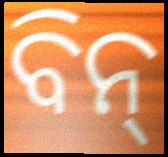
ବିନ୍